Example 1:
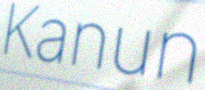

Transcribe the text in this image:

Kanun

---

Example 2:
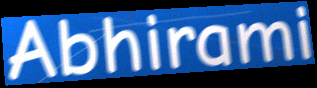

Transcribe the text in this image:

Abhirami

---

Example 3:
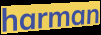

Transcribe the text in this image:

harman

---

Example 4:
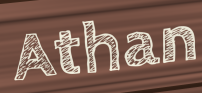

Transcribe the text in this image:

Athan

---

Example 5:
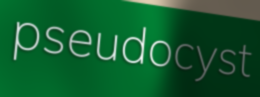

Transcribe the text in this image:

pseudocyst